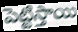
పెట్టిస్తాయి